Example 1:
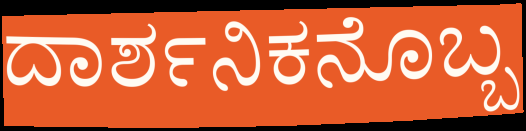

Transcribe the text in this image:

ದಾರ್ಶನಿಕನೊಬ್ಬ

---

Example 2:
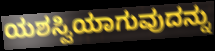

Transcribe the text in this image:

ಯಶಸ್ವಿಯಾಗುವುದನ್ನು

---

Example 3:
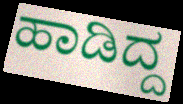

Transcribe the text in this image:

ಹಾಡಿದ್ದ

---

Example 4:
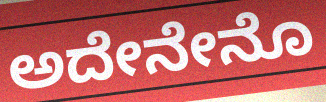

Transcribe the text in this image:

ಅದೇನೇನೊ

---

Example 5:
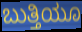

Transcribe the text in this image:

ಬುತ್ತಿಯೂ